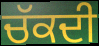
ਚੱਕਦੀ